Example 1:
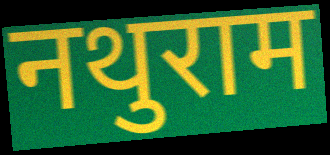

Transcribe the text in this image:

नथुराम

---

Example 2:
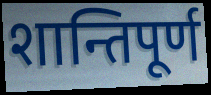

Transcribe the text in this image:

शान्तिपूर्ण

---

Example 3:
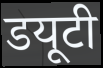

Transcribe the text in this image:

डयूटी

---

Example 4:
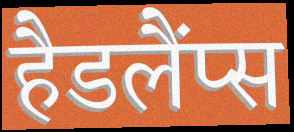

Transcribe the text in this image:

हैडलैंप्स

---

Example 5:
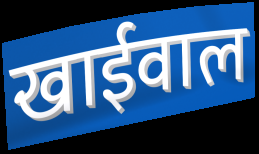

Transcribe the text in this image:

खाईवाल